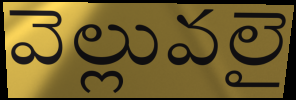
వెల్లువలై